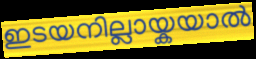
ഇടയനില്ലായ്കയാൽ